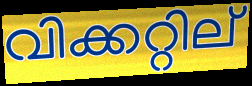
വിക്കറ്റില്